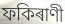
ফকিৰাণী